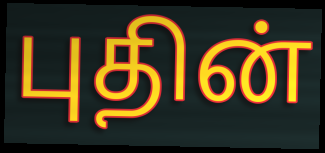
புதின்